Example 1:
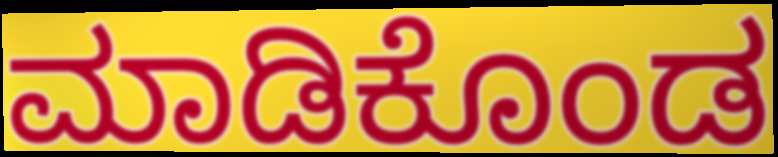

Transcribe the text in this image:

ಮಾಡಿಕೊಂಡ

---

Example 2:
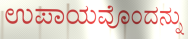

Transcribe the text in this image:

ಉಪಾಯವೊಂದನ್ನು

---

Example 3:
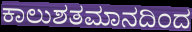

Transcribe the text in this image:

ಕಾಲುಶತಮಾನದಿಂದ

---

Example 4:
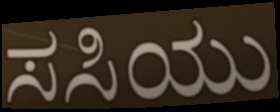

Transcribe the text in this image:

ಸಸಿಯು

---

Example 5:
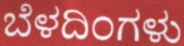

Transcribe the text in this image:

ಬೆಳದಿಂಗಳು